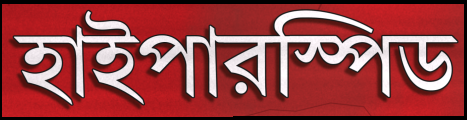
হাইপারস্পিড